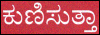
ಕುಣಿಸುತ್ತಾ